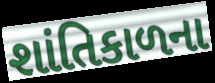
શાંતિકાળના